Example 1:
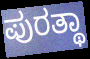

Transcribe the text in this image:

ಪುರತ್ಥಾ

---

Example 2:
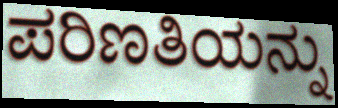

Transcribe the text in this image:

ಪರಿಣತಿಯನ್ನು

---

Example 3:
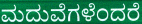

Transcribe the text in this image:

ಮದುವೆಗಳೆಂದರೆ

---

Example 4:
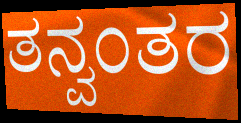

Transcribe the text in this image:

ತನ್ವಂತರ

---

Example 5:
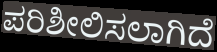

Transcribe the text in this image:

ಪರಿಶೀಲಿಸಲಾಗಿದೆ